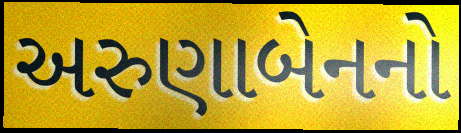
અરુણાબેનનો